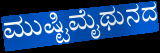
ಮುಷ್ಟಿಮೈಥುನದ